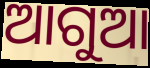
ଆଗୁଆ